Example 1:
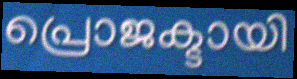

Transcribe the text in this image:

പ്രൊജക്ടായി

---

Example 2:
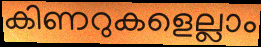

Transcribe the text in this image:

കിണറുകളെല്ലാം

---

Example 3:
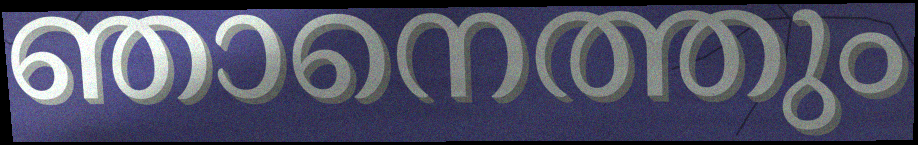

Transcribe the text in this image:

ഞാനെത്തും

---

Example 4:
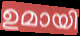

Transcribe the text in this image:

ഉമായി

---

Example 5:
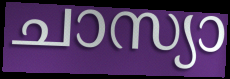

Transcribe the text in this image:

ചാസ്യാ